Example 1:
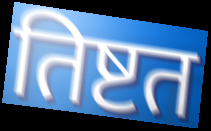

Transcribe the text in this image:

तिष्टत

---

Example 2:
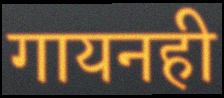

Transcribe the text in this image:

गायनही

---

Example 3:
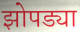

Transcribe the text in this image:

झोपड्या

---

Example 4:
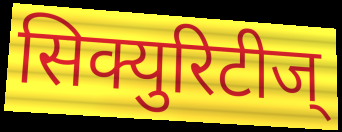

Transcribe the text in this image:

सिक्युरिटीज्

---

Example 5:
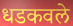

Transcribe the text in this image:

धडकवले